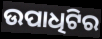
ଉପାଧିଟିର